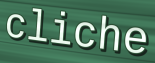
cliche